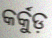
କର୍କୁଡ଼